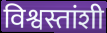
विश्वस्तांशी